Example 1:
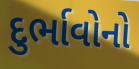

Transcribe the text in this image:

દુર્ભાવોનો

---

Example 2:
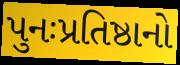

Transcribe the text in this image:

પુનઃપ્રતિષ્ઠાનો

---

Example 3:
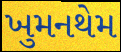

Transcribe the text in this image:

ખુમનથેમ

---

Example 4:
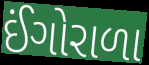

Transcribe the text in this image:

ઈંગોરાળા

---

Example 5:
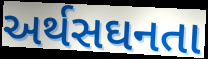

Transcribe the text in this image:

અર્થસઘનતા